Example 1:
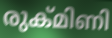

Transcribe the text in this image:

രുക്മിണി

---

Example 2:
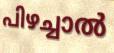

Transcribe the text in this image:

പിഴച്ചാൽ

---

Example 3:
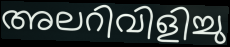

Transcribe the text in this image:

അലറിവിളിച്ചു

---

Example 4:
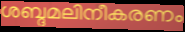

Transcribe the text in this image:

ശബ്ദമലിനീകരണം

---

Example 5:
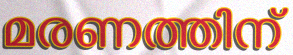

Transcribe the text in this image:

മരണത്തിന്